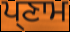
ਪ੍ਣਾਮ